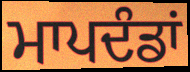
ਮਾਪਦੰਡਾਂ